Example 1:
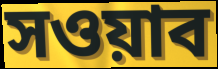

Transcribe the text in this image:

সওয়াব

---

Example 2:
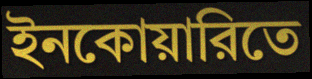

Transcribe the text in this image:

ইনকোয়ারিতে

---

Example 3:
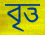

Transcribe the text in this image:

বৃত্ত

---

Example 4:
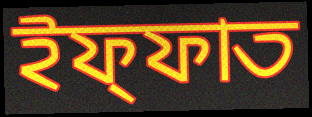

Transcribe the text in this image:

ইফ্ফাত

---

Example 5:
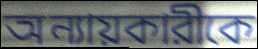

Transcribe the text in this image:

অন্যায়কারীকে